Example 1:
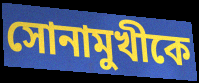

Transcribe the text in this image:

সোনামুখীকে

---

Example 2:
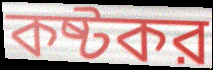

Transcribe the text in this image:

কষ্টকর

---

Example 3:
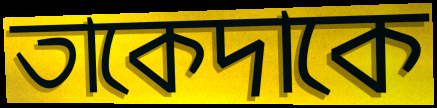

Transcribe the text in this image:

তাকেদাকে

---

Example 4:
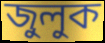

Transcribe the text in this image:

জুলুক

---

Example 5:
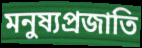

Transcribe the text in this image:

মনুষ্যপ্রজাতি